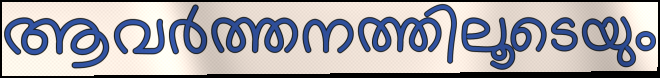
ആവർത്തനത്തിലൂടെയും